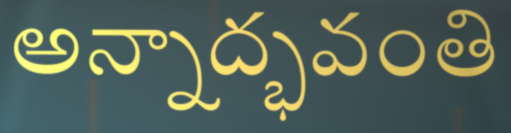
అన్నాద్భవంతి